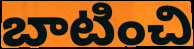
బాటించి